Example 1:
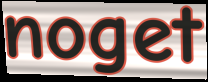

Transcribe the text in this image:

noget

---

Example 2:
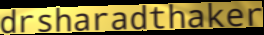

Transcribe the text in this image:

drsharadthaker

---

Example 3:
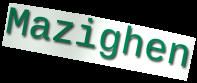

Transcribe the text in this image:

Mazighen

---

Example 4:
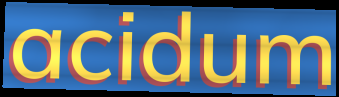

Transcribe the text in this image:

acidum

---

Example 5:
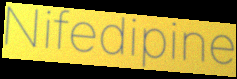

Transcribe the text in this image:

Nifedipine